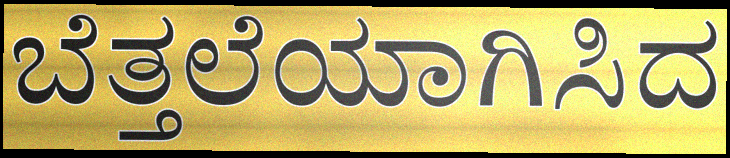
ಬೆತ್ತಲೆಯಾಗಿಸಿದ